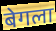
बेगला